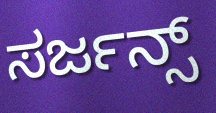
ಸರ್ಜನ್ಸ್